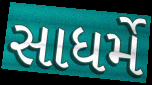
સાધર્મે